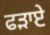
ਫੜਾਏ